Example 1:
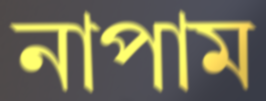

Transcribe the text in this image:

নাপাম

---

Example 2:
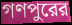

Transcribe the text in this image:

গণপুরের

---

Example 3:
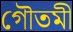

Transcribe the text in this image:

গৌতমী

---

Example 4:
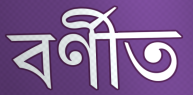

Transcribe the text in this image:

বর্ণীত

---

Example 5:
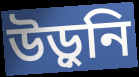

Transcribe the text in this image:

উড়ুনি